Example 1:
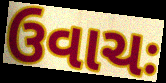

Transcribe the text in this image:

ઉવાચઃ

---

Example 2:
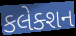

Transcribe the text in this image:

કલેક્શન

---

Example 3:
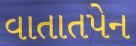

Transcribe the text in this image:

વાતાતપેન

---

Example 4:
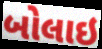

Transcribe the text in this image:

બોલાઇ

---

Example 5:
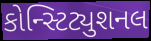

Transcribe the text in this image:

કોન્સ્ટિટ્યુશનલ